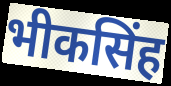
भीकसिंह